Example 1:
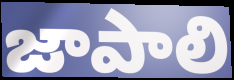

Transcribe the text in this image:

జాపాలి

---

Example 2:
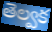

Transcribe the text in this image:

తెల్వక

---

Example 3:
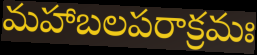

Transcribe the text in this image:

మహాబలపరాక్రమః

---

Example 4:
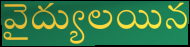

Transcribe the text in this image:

వైద్యులయిన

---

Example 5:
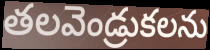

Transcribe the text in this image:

తలవెండ్రుకలను